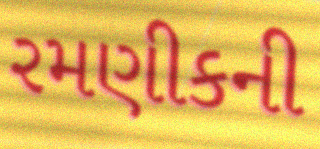
રમણીકની